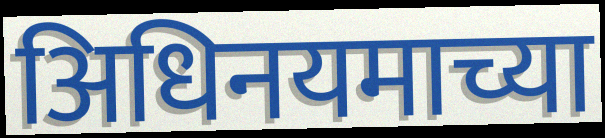
अिधिनयमाच्या